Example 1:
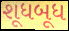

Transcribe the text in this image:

શૂધબૂધ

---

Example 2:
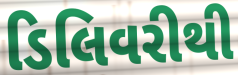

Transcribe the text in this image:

ડિલિવરીથી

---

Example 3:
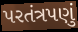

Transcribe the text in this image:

પરતંત્રપણું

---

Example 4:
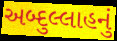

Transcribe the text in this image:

અબ્દુલ્લાહનું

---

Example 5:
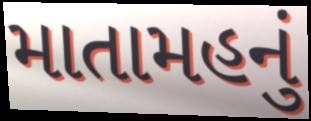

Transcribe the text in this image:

માતામહનું